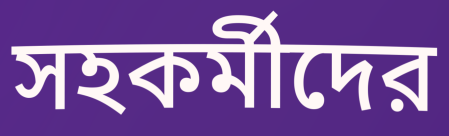
সহকর্মীদের